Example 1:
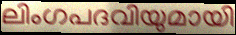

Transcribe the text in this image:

ലിംഗപദവിയുമായി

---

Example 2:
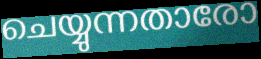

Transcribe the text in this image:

ചെയ്യുന്നതാരോ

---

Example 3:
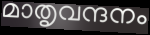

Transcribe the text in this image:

മാതൃവന്ദനം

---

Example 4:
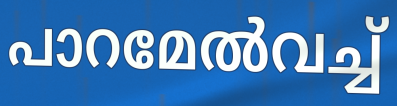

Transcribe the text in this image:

പാറമേൽവച്ച്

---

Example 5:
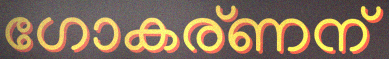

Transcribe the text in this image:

ഗോകര്ണന്